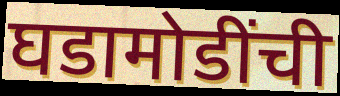
घडामोडींची